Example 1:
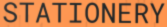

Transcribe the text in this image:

STATIONERY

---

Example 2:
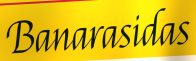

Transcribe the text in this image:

Banarasidas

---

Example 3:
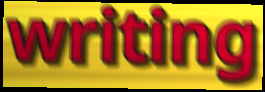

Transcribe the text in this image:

writing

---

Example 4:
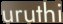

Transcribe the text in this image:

uruthi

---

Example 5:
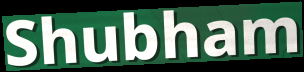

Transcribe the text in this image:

Shubham